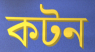
কটন